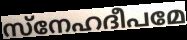
സ്നേഹദീപമേ